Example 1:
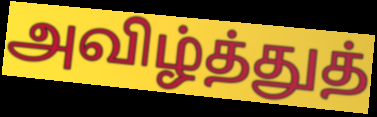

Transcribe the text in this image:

அவிழ்த்துத்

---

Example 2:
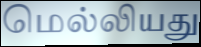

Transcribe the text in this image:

மெல்லியது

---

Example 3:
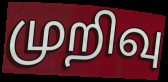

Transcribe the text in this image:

முறிவு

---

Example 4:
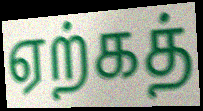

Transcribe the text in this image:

ஏற்கத்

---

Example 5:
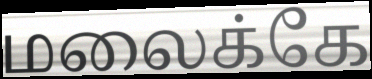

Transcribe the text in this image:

மலைக்கே